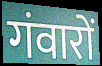
गंवारों